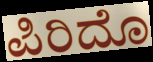
ಪಿರಿದೊ